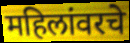
महिलांवरचे